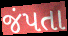
જંપતા